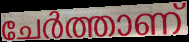
ചേർത്താണ്